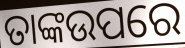
ତାଙ୍କଉପରେ